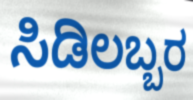
ಸಿಡಿಲಬ್ಬರ